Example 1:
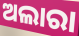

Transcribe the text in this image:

ଅଲାରା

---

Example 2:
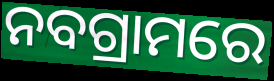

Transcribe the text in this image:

ନବଗ୍ରାମରେ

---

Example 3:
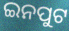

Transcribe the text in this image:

ଇନପୁଟ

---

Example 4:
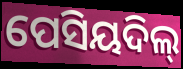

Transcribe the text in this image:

ପେସିୟଦିଲ୍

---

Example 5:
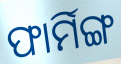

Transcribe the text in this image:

ଫାର୍ମିଙ୍ଗ